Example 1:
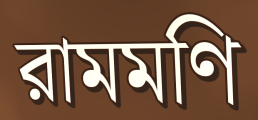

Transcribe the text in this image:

রামমণি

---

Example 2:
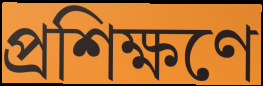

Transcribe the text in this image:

প্রশিক্ষণে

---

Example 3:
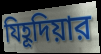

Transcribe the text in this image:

যিহূদিয়ার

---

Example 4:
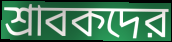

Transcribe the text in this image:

শ্রাবকদের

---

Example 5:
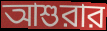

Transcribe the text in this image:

আশুরার